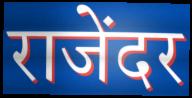
राजेंदर